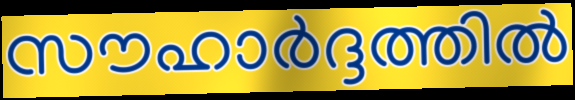
സൗഹാർദ്ദത്തിൽ